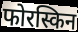
फोरस्किन